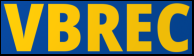
VBREC